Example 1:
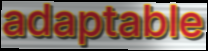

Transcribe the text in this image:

adaptable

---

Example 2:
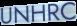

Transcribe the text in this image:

UNHRC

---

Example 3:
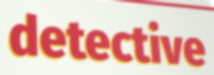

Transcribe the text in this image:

detective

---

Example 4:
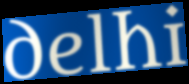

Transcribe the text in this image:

delhi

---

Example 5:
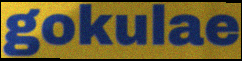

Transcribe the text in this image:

gokulae